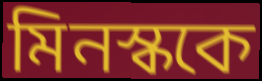
মিনস্ককে